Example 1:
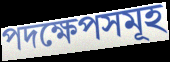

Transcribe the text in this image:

পদক্ষেপসমূহ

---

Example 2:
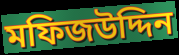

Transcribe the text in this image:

মফিজউদ্দিন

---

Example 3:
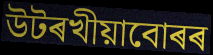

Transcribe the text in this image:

উটৰখীয়াবোৰৰ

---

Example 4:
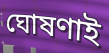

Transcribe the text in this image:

ঘোষণাই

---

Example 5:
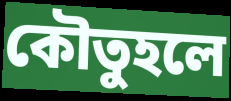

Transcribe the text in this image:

কৌতুহলে